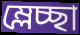
ম্লেচ্ছা